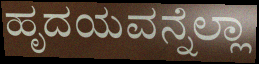
ಹೃದಯವನ್ನೆಲ್ಲಾ